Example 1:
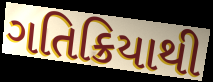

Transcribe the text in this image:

ગતિક્રિયાથી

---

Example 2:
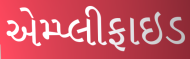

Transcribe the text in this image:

એમ્પ્લીફાઇડ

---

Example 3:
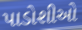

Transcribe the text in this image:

પાડોશીઓ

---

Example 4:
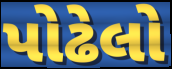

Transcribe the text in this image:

પોઢેલો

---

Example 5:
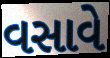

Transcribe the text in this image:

વસાવે